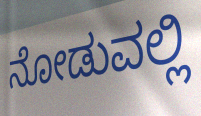
ನೋಡುವಲ್ಲಿ